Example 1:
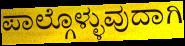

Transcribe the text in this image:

ಪಾಲ್ಗೊಳ್ಳುವುದಾಗಿ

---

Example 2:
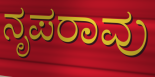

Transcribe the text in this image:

ನೃಪರಾವು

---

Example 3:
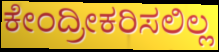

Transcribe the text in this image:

ಕೇಂದ್ರೀಕರಿಸಲಿಲ್ಲ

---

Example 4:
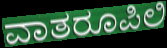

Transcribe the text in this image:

ವಾತರೂಪಿಲಿ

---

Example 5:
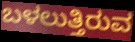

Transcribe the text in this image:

ಬಳಲುತ್ತಿರುವ